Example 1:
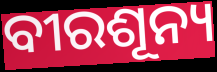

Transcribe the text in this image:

ବୀରଶୂନ୍ୟ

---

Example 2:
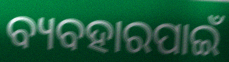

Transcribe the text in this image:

ବ୍ୟବହାରପାଇଁ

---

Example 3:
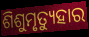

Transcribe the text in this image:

ଶିଶୁମୃତ୍ୟୁହାର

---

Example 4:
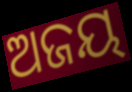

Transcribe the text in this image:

ଅଜୟ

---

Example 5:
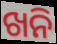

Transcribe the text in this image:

ଖନି